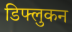
डिफ्लुकन